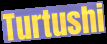
Turtushi